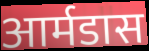
आर्मडास